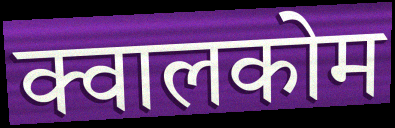
क्वालकोम